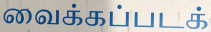
வைக்கப்படக்